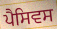
ਪੈਸਿਵਸ